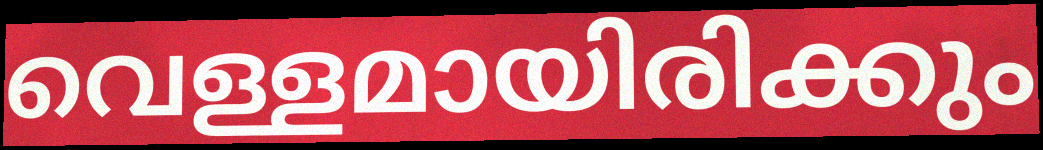
വെള്ളമായിരിക്കും